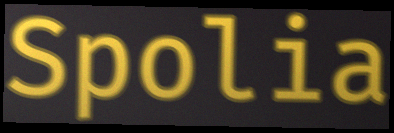
Spolia